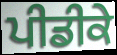
ਪੀਡੀਕੇ